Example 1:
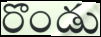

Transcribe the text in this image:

రొండు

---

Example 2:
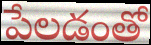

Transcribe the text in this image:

పేలడంతో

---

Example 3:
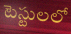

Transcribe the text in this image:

టెస్టులలో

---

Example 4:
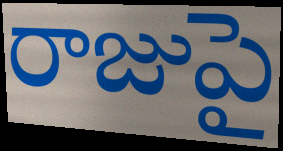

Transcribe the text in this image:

రాజుపై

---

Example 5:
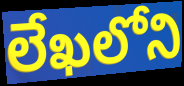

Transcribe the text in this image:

లేఖలోని